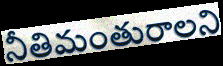
నీతిమంతురాలని